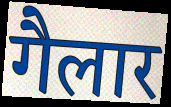
गैलार